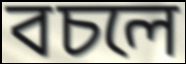
বচলে